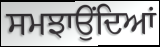
ਸਮਝਾਉਂਦਿਆਂ